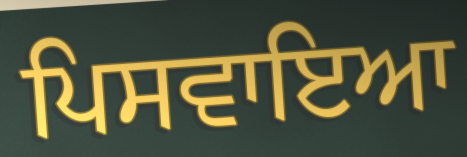
ਪਿਸਵਾਇਆ